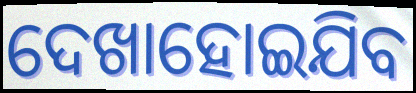
ଦେଖାହୋଇଯିବ